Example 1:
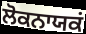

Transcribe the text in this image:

ਲੋਕਨਾਯਕਂ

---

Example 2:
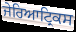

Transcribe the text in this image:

ਜੇਰਿਆਟ੍ਰਿਕਸ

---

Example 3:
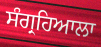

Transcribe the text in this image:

ਸੰਗ੍ਰਹਿਆਲਾ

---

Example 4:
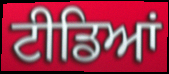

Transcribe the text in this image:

ਟੀਡਿਆਂ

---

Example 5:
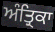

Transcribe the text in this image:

ਅੰਤ੍ਰਿਕਾ